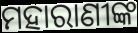
ମହାରାଣୀଙ୍କ